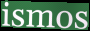
ismos